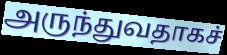
அருந்துவதாகச்